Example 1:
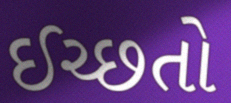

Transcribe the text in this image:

ઈચ્છતો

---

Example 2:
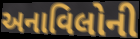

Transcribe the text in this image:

અનાવિલોની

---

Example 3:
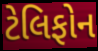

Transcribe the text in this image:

ટેલિફોન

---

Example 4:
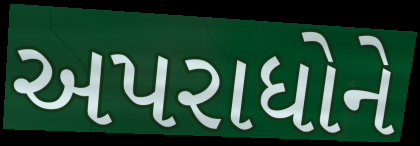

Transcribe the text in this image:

અપરાધોને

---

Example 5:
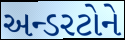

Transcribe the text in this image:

અન્ડરટોને